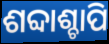
ଶବ୍ଦାଶ୍ଚାପି